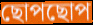
ছোপছোপ